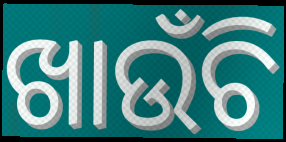
ଖାଉଁଚି